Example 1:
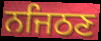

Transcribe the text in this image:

ਨਜਿਠਣ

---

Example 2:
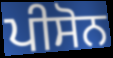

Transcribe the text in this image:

ਪੀਸੋਨ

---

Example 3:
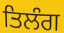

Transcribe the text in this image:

ਤਿਲੰਗ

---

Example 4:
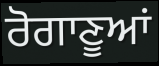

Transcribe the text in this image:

ਰੋਗਾਣੂਆਂ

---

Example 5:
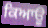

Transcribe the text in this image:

ਕਿਆਊ